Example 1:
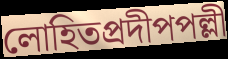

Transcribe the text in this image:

লোহিতপ্রদীপপল্লী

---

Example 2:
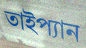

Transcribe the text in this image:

তাইপ্যান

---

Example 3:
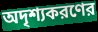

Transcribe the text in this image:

অদৃশ্যকরণের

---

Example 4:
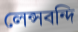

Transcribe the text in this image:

লেন্সবন্দি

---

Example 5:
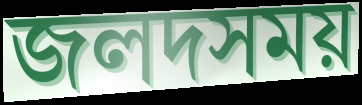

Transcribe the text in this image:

জলদসময়